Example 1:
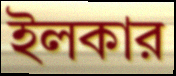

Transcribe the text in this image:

ইলকার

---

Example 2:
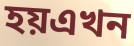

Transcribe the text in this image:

হয়এখন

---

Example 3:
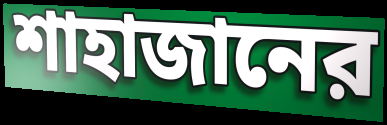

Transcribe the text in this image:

শাহাজানের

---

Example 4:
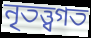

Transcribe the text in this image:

নৃতত্ত্বগত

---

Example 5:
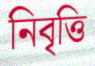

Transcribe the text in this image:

নিবৃত্তি